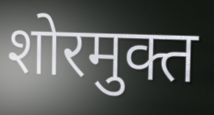
शोरमुक्त